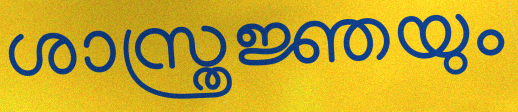
ശാസ്ത്രജ്ഞയും